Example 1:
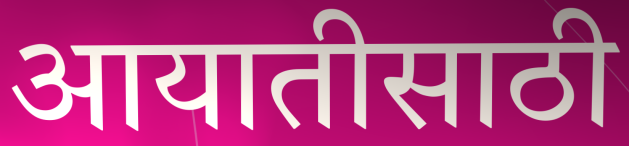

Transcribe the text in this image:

आयातीसाठी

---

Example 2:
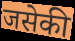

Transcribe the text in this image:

जसेकी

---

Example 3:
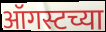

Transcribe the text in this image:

ऑगस्टच्या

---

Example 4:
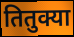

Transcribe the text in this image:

तितुक्या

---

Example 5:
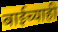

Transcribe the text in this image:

बाईच्याही